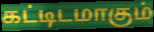
கட்டிடமாகும்